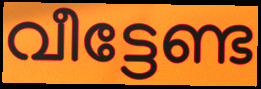
വീട്ടേണ്ട